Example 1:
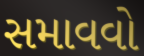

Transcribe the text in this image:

સમાવવો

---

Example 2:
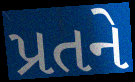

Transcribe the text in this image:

પ્રતને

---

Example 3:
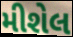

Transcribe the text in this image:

મીશેલ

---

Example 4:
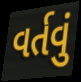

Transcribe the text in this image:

વર્તવું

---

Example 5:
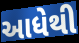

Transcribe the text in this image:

આધેથી